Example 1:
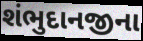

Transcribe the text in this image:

શંભુદાનજીના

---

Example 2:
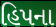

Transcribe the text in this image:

હિપના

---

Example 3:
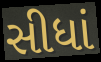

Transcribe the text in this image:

સીધાં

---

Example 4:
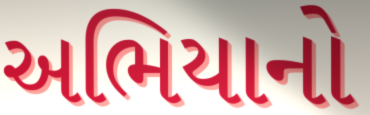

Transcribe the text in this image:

અભિયાનો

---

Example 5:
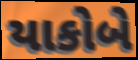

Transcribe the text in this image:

યાકોબે